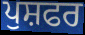
ਪੁਸ਼ਫਰ